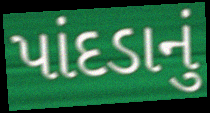
પાંદડાનું